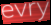
evry